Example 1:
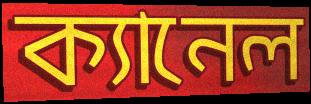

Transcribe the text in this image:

ক্যানেল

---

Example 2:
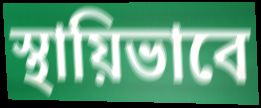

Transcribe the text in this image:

স্থায়িভাবে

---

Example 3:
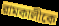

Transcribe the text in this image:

রামকালীকে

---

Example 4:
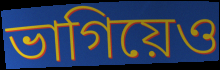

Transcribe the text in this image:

ভাগিয়েও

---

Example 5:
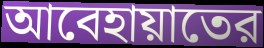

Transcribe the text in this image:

আবেহায়াতের